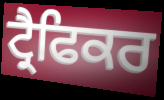
ਟ੍ਰੈਫਿਕਰ